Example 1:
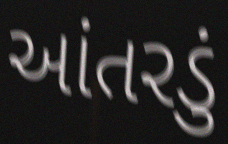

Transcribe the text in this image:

આંતરડું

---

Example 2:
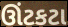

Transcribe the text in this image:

ઊંટકટા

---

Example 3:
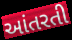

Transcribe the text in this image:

આંતરતી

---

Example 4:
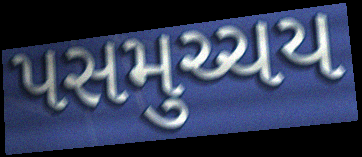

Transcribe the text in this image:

પસમુચ્ચય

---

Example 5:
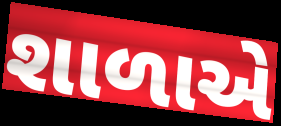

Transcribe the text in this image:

શાળાએે